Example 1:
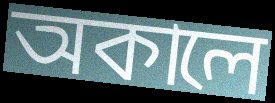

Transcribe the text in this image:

অকালে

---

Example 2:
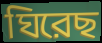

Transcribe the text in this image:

ঘিরেছ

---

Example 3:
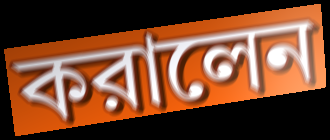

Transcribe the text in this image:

করালেন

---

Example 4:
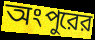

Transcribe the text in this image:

অংপুরের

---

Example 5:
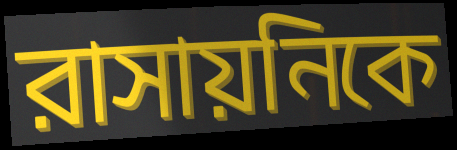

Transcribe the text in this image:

রাসায়নিকে